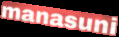
manasuni